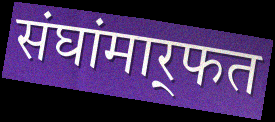
संघांमार्फत